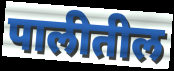
पालीतील